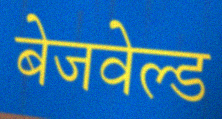
बेजवेल्ड